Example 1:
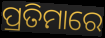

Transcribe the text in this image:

ପ୍ରତିମାରେ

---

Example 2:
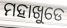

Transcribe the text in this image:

ମହାଖୁଡେ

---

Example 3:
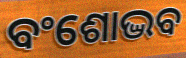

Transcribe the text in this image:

ବଂଶୋଦ୍ଭବ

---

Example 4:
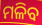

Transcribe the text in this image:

ମଳିବ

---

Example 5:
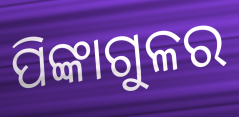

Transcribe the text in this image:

ପିଙ୍କାଗୁଳର